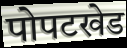
पोपटखेड